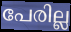
പേരില്ല